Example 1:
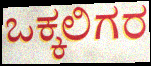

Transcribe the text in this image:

ಒಕ್ಕಲಿಗರ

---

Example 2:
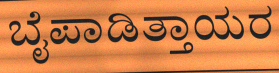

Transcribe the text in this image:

ಬೈಪಾಡಿತ್ತಾಯರ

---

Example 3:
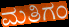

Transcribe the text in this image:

ಮತಿಗಂ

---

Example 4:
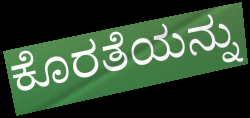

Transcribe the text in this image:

ಕೊರತೆಯನ್ನು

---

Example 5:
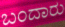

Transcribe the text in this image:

ಬಂದಾರು